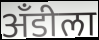
अँडीला